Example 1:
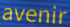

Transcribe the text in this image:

avenir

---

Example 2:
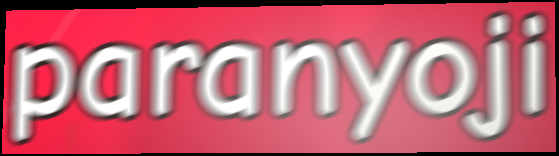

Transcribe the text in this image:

paranyoji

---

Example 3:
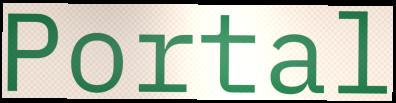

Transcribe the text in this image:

Portal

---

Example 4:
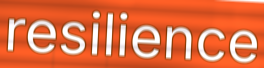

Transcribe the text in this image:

resilience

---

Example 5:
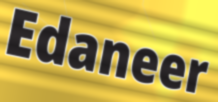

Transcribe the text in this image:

Edaneer